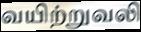
வயிற்றுவலி